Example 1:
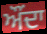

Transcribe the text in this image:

ਔਂਦਾ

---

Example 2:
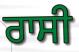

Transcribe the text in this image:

ਰਾਸੀ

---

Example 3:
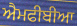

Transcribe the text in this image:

ਐਮਫੀਬੀਆ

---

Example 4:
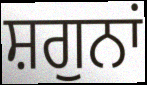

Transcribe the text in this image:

ਸ਼ਗੁਨਾਂ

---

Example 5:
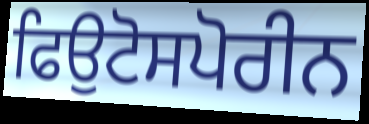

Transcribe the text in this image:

ਫਿਉਟੋਸਪੋਰੀਨ